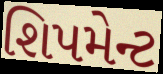
શિપમેન્ટ